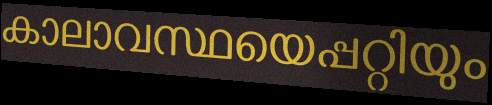
കാലാവസ്ഥയെപ്പറ്റിയും